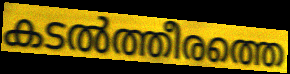
കടൽത്തീരത്തെ